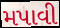
મપાવી